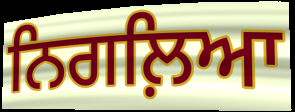
ਨਿਗਲ਼ਿਆ